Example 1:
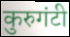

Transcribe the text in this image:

कुरुगंटी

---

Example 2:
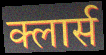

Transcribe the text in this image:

क्लार्स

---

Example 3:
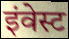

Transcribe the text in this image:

इंवेस्ट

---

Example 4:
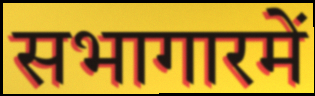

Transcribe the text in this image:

सभागारमें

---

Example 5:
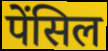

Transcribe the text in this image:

पेंसिल